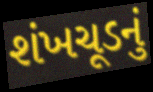
શંખચૂડનું